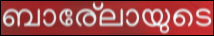
ബാര്ലോയുടെ